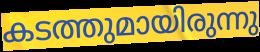
കടത്തുമായിരുന്നു